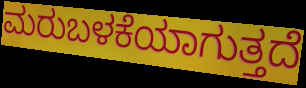
ಮರುಬಳಕೆಯಾಗುತ್ತದೆ